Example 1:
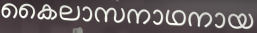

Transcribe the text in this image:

കൈലാസനാഥനായ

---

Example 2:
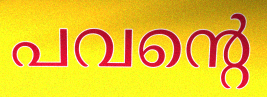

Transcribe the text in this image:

പവന്റെ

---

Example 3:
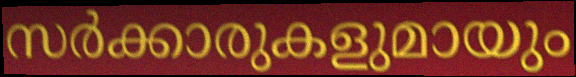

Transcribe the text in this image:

സർക്കാരുകളുമായും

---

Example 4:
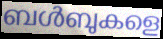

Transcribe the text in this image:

ബൾബുകളെ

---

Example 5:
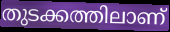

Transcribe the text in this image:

തുടക്കത്തിലാണ്